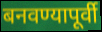
बनवण्यापूर्वी